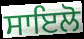
ਸਾਇਲੋ